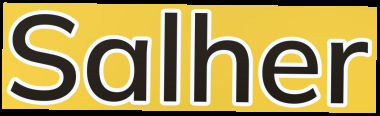
Salher